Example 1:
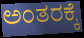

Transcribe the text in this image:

ಅಂತರಕ್ಕೆ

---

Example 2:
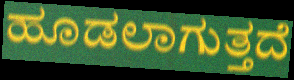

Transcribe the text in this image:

ಹೂಡಲಾಗುತ್ತದೆ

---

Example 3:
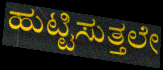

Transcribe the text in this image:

ಹುಟ್ಟಿಸುತ್ತಲೇ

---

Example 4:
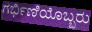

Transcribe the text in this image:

ಗರ್ಭಿಣಿಯೊಬ್ಬರು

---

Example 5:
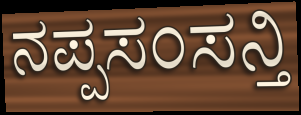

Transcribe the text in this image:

ನಪ್ಪಸಂಸನ್ತಿ